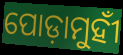
ପୋଡ଼ାମୁହୀଁ